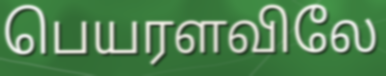
பெயரளவிலே